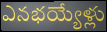
ఎనభయ్యేళ్లు